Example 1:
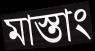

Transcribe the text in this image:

মাস্তাং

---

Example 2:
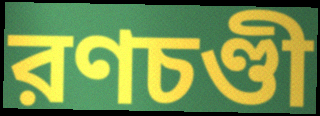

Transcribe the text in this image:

রণচণ্ডী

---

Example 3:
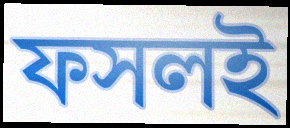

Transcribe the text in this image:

ফসলই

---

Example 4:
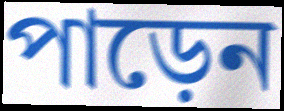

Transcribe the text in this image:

পাড়েন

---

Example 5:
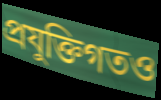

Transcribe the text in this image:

প্রযুক্তিগতও